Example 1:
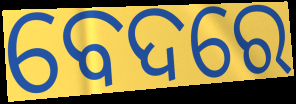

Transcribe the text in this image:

ବେଦରେ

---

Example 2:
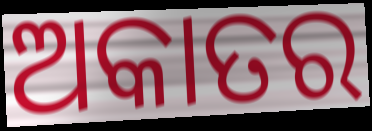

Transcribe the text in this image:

ଅକାତର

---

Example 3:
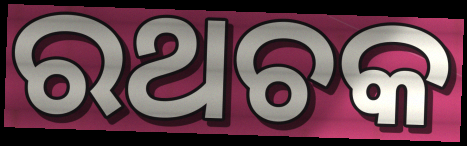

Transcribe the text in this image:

ରଥଚକ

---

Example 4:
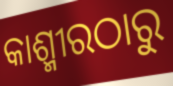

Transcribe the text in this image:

କାଶ୍ମୀରଠାରୁ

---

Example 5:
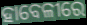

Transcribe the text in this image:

ହାବେଳୀରେ